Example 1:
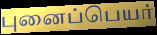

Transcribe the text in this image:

புனைப்பெயர்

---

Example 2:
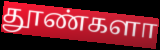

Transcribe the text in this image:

தூண்களா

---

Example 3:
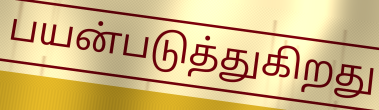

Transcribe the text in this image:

பயன்படுத்துகிறது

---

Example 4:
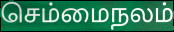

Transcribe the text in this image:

செம்மைநலம்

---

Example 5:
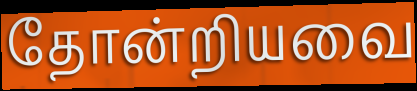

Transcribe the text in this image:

தோன்றியவை